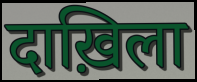
दाख़िला